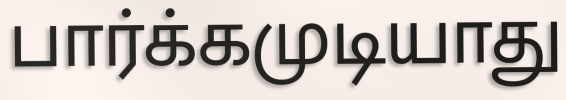
பார்க்கமுடியாது